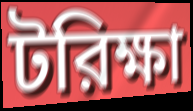
টরিক্ষা